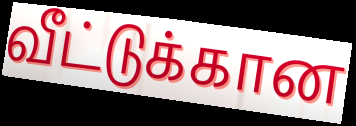
வீட்டுக்கான